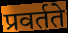
प्रवर्तते